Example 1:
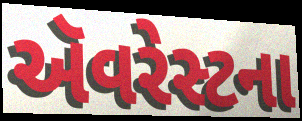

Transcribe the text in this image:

ઍૅવરેસ્ટના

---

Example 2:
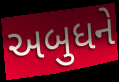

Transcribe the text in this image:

અબુધને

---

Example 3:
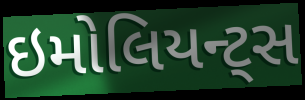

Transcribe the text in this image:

ઇમોલિયન્ટ્સ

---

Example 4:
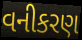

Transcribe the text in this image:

વનીકરણ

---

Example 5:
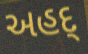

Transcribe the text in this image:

અહદ્